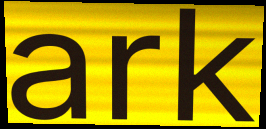
ark